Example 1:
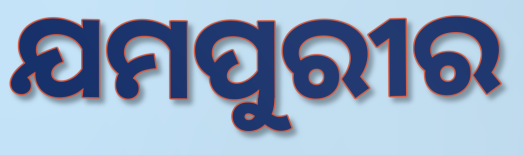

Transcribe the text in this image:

ଯମପୁରୀର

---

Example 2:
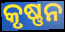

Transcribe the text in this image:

କୃଷ୍ଣନ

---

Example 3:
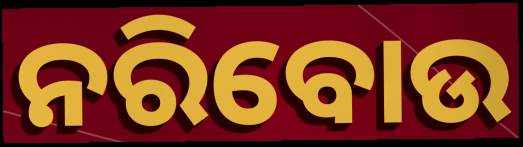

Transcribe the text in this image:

ନରିବୋଉ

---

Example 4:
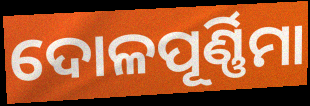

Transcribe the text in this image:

ଦୋଳପୂର୍ଣ୍ଣିମା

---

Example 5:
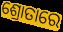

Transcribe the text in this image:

ଶ୍ରୋତାରେ